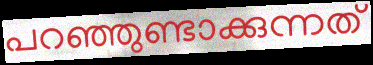
പറഞ്ഞുണ്ടാക്കുന്നത്